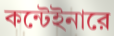
কন্টেইনারে